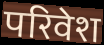
परिवेश